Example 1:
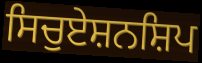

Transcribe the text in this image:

ਸਿਚੁਏਸ਼ਨਸ਼ਿਪ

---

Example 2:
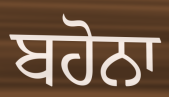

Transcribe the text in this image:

ਬਹੋਨਾ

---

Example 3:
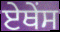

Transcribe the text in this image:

ਏਥੇਂਸ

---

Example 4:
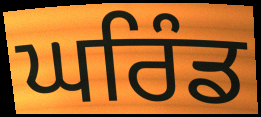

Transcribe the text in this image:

ਘਰਿੰਡ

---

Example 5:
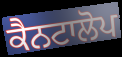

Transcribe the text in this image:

ਕੈਨਟਾਲੋਪ